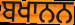
ਬਖਾਨਨ